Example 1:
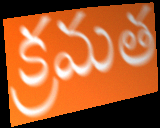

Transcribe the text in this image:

క్రమత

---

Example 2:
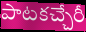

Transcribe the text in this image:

పాటకచ్చేరీ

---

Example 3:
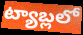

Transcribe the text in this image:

ట్యాబ్లలో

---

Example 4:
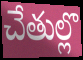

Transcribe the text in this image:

చేతుల్లొ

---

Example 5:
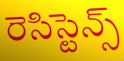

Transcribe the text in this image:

రెసిస్టెన్స్